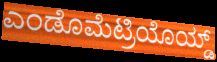
ಎಂಡೊಮೆಟ್ರಿಯೊಯ್ಡ್